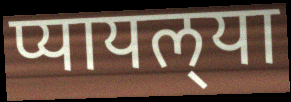
प्यायल्या